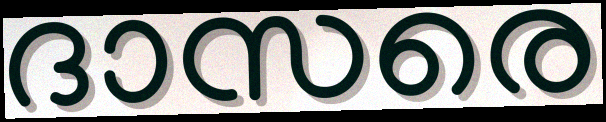
ദാസരെ